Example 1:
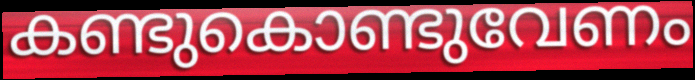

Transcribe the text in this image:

കണ്ടുകൊണ്ടുവേണം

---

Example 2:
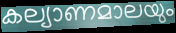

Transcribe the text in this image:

കല്യാണമാലയും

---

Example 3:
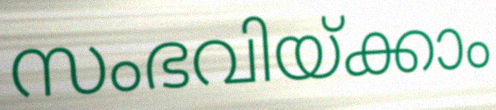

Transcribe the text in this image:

സംഭവിയ്ക്കാം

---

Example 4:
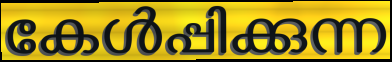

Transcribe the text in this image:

കേൾപ്പിക്കുന്ന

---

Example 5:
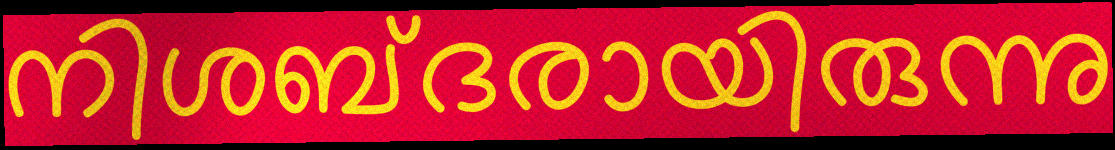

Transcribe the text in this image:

നിശബ്ദരായിരുന്നു